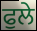
ਫੁਲੇ